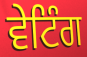
ਵੇਟਿੰਗ